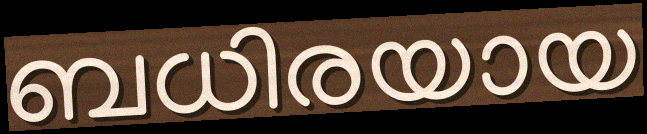
ബധിരയായ